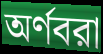
অর্ণবরা